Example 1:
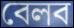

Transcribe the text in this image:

বেলব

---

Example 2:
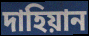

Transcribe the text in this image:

দাহিয়ান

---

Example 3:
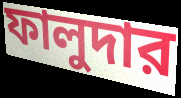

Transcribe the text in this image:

ফালুদার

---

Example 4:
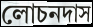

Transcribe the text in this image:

লোচনদাস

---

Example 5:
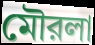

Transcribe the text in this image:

মৌরলা